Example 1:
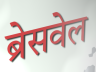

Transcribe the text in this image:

ब्रेसवेल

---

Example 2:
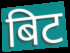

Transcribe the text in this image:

बिट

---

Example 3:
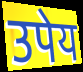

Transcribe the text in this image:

उपेय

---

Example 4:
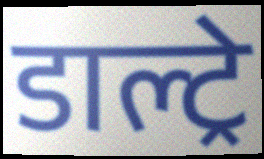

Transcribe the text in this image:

डाल्ट्रे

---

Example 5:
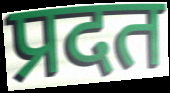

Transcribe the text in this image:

प्रदत